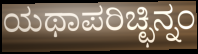
ಯಥಾಪರಿಚ್ಛಿನ್ನಂ